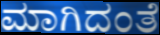
ಮಾಗಿದಂತೆ